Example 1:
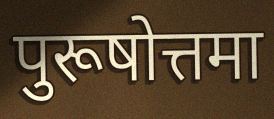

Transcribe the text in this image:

पुरूषोत्तमा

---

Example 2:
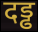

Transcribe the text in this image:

दड्ढ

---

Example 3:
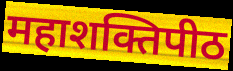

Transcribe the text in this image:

महाशक्तिपीठ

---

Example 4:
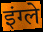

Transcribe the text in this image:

इंग्ले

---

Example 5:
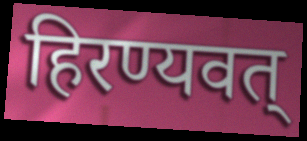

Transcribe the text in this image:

हिरण्यवत्